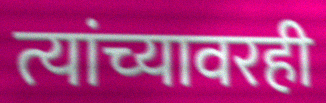
त्यांच्यावरही